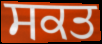
ਸਕਤ